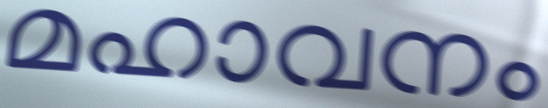
മഹാവനം